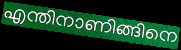
എന്തിനാണിങ്ങിനെ